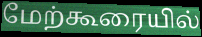
மேற்கூரையில்